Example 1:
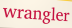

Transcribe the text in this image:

wrangler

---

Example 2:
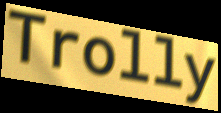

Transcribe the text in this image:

Trolly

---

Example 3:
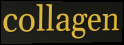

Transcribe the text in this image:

collagen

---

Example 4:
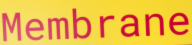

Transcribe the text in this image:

Membrane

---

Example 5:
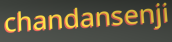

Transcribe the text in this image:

chandansenji